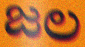
జల